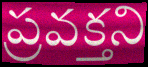
ప్రవక్తని